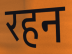
रहन